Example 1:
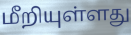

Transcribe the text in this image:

மீறியுள்ளது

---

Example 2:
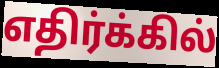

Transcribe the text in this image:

எதிர்க்கில்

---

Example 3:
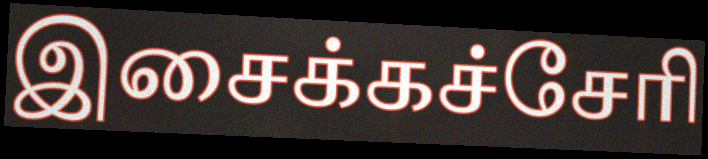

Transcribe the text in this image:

இசைக்கச்சேரி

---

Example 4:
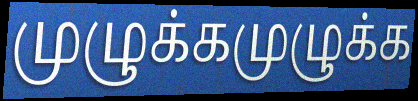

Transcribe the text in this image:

முழுக்கமுழுக்க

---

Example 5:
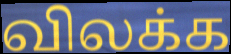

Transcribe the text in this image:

விலக்க